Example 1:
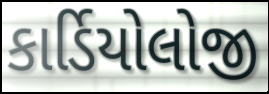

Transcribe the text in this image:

કાર્ડિયોલોજી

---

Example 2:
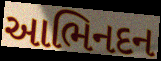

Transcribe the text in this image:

આભિનદન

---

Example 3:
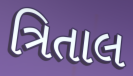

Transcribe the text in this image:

ત્રિતાલ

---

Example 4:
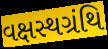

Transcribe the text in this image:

વક્ષસ્થગ્રંથિ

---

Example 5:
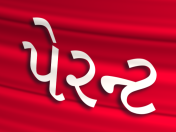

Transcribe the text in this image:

પેરન્ટ